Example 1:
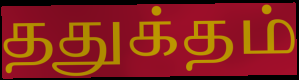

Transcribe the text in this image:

ததுக்தம்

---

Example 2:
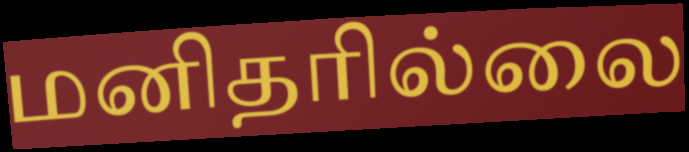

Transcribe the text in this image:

மனிதரில்லை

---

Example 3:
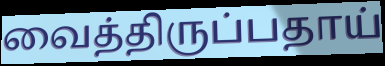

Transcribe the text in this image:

வைத்திருப்பதாய்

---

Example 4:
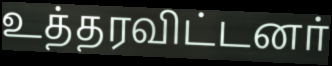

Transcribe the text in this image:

உத்தரவிட்டனர்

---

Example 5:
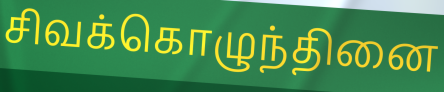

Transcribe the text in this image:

சிவக்கொழுந்தினை